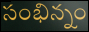
సంభిన్నం